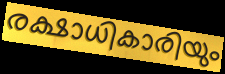
രക്ഷാധികാരിയും